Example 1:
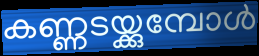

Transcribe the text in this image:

കണ്ണടയ്ക്കുമ്പോൾ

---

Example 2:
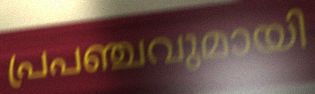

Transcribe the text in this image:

പ്രപഞ്ചവുമായി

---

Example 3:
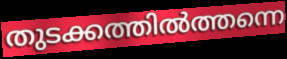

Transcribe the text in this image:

തുടക്കത്തിൽത്തന്നെ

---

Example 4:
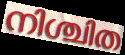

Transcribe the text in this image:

നിശ്ചിത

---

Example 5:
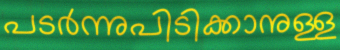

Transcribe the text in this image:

പടർന്നുപിടിക്കാനുള്ള